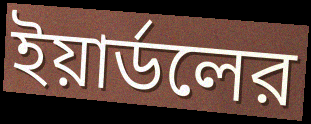
ইয়ার্ডলের